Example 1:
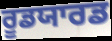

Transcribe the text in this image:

ਰੂਡਯਾਰਡ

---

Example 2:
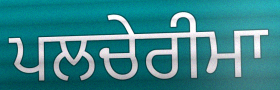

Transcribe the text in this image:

ਪਲਚੇਰੀਮਾ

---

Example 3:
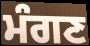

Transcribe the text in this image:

ਮੰਗਣ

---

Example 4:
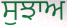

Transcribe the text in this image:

ਸੁਝਾਅ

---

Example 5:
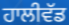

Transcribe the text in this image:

ਹਾਲੀਵੱਡ